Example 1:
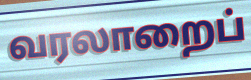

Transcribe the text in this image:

வரலாறைப்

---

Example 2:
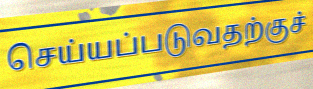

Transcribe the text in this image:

செய்யப்படுவதற்குச்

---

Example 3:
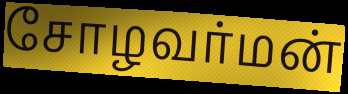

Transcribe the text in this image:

சோழவர்மன்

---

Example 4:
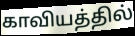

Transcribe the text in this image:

காவியத்தில்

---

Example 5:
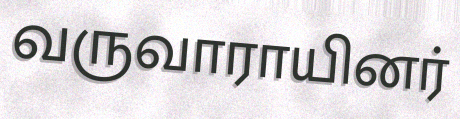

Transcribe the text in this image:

வருவாராயினர்